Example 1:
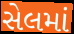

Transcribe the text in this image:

સેલમાં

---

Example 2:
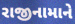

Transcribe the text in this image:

રાજીનામાને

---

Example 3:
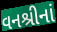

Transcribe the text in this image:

વનશ્રીનાં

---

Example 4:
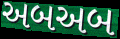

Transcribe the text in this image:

અબઅબ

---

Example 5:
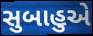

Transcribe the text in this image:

સુબાહુએ